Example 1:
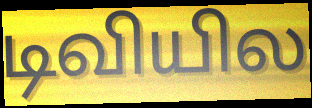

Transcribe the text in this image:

டிவியில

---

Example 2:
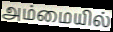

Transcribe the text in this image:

அம்மையில்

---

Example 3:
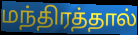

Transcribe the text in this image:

மந்திரத்தால்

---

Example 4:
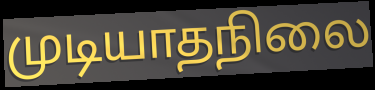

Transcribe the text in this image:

முடியாதநிலை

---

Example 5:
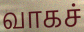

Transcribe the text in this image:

வாகச்